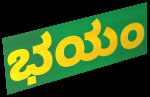
ಭಯಂ